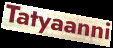
Tatyaanni